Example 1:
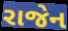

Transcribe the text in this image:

રાજેન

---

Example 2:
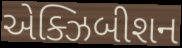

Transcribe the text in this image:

એક્ઝિબીશન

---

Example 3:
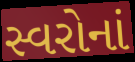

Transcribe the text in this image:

સ્વરોનાં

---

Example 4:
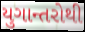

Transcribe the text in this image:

યુગાન્તરોથી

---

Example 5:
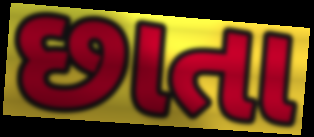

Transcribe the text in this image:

છાતા